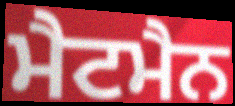
ਮੈਟਮੈਨ